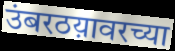
उंबरठय़ावरच्या